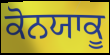
ਕੋਨਯਾਕੂ